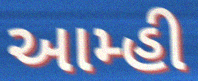
આમ્હી